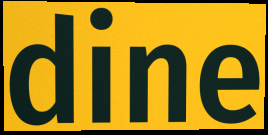
dine